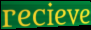
recieve